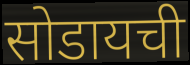
सोडायची